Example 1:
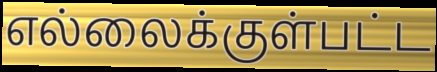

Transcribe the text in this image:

எல்லைக்குள்பட்ட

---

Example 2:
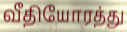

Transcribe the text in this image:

வீதியோரத்து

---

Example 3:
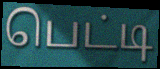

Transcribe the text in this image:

பெட்டி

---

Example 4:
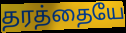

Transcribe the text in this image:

தரத்தையே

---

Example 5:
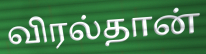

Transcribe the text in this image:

விரல்தான்